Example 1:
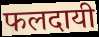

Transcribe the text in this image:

फलदायी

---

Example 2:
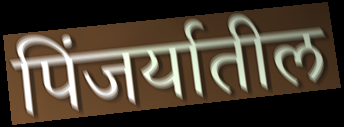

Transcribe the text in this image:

पिंजर्यातील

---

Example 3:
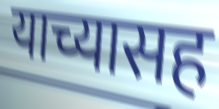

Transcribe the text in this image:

याच्यासह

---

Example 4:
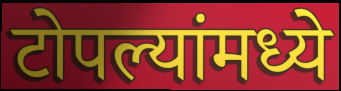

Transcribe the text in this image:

टोपल्यांमध्ये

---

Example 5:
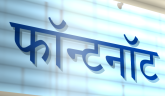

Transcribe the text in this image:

फॉन्टनॉट